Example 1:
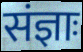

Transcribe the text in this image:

संज्ञाः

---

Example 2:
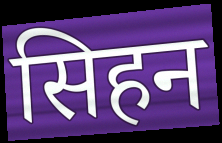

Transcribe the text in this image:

सिहन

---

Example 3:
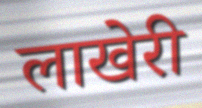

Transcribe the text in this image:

लाखेरी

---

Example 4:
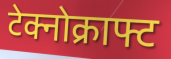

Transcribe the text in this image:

टेक्नोक्राफ्ट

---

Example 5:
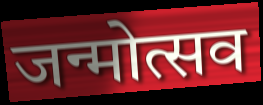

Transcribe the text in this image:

जन्मोत्सव